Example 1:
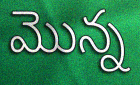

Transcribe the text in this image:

మొన్న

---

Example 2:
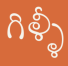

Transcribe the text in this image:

గిళ్ళీ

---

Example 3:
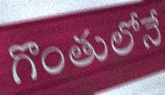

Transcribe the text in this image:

గొంతులోనే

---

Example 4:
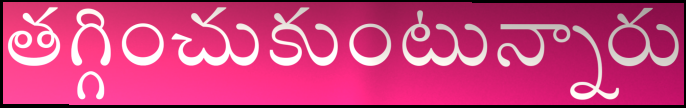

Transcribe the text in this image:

తగ్గించుకుంటున్నారు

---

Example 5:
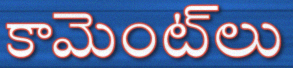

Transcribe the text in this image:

కామెంట్‌లు